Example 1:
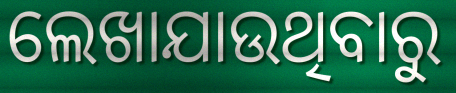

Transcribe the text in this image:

ଲେଖାଯାଉଥିବାରୁ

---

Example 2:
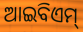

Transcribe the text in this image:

ଆଇବିଏମ୍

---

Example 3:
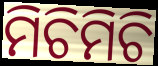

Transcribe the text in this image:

ମିଚିମିଚି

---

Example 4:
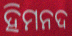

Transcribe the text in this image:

ହିମନଦ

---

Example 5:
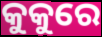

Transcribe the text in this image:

କୁକୁରେ